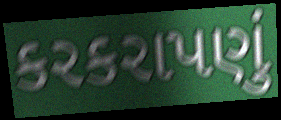
કરકરાપણું